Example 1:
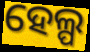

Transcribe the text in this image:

ହେଲ୍ପ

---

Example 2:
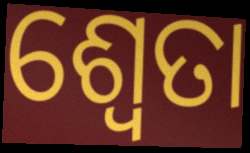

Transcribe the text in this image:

ଶ୍ୱେତା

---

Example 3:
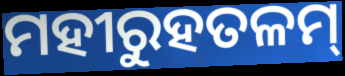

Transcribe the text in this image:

ମହୀରୁହତଳମ୍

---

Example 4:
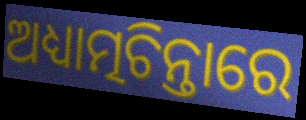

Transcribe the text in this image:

ଅଧ୍ୟାତ୍ମଚିନ୍ତାରେ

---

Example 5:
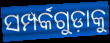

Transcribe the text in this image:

ସମ୍ପର୍କଗୁଡ଼ାକୁ